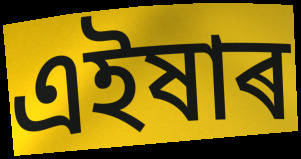
এইষাৰ